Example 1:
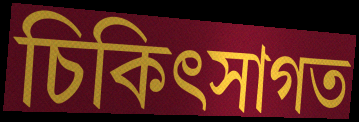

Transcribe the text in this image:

চিকিৎসাগত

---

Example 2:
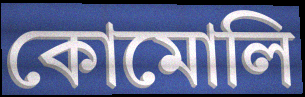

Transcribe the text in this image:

কোমোলি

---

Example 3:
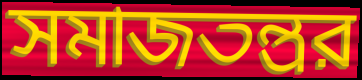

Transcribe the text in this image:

সমাজতন্ত্রর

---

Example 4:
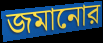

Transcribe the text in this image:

জমানোর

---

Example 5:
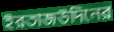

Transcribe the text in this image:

ইরতাজউদিনের